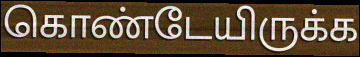
கொண்டேயிருக்க